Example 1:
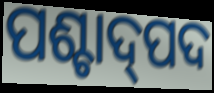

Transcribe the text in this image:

ପଶ୍ଚାଦ୍‍ପଦ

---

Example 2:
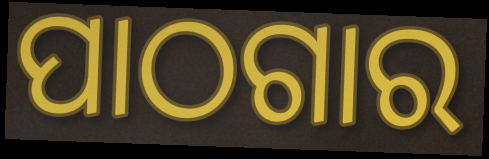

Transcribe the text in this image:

ପାଠଗାର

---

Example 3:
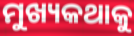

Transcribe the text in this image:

ମୁଖ୍ୟକଥାକୁ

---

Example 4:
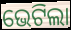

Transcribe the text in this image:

ଭେଟିଲା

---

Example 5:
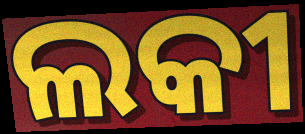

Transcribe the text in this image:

ଲକୀ